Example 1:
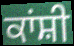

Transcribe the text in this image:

ਕਾਂਸ਼ੀ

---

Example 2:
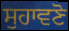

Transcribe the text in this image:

ਸੁਹਾਵਣੋ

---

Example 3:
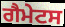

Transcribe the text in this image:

ਗੈਮੇਟਸ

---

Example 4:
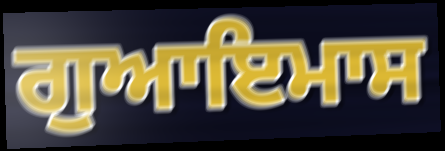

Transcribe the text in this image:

ਗੁਆਇਮਾਸ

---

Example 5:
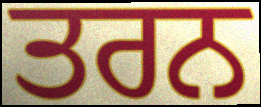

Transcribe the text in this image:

ਤਰਨ